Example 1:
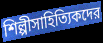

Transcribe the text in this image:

শিল্পীসাহিত্যিকদের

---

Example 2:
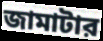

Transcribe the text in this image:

জামাটার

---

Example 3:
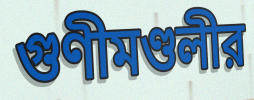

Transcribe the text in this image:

গুণীমণ্ডলীর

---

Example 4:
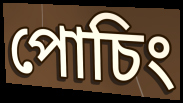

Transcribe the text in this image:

পোচিং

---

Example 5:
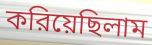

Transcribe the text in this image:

করিয়েছিলাম